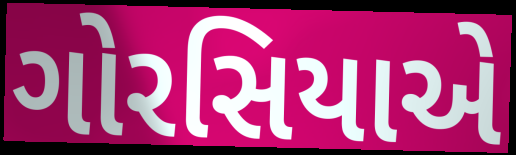
ગોરસિયાએ